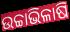
ଉଚ୍ଚାଭିଳାଷି